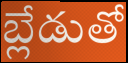
బ్లేడుతో